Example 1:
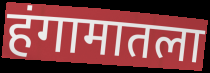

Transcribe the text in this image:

हंगामातला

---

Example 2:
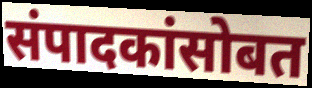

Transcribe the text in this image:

संपादकांसोबत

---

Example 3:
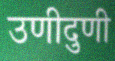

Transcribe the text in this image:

उणीदुणी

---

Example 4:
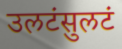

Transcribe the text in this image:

उलटंसुलटं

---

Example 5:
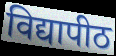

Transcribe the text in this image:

विद्यापीठ